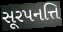
સૂરપનત્તિ